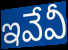
ఇవేవీ